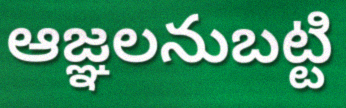
ఆజ్ఞలనుబట్టి